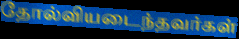
தோல்வியடைந்தவர்கள்